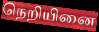
நெறியினை